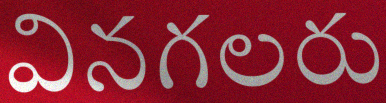
వినగలరు